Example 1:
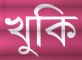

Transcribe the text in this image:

খুকি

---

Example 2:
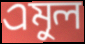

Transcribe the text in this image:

এমুল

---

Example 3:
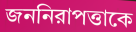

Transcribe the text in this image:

জননিরাপত্তাকে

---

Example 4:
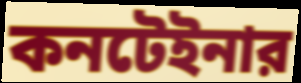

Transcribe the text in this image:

কনটেইনার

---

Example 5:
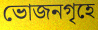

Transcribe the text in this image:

ভোজনগৃহে